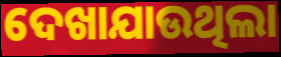
ଦେଖାଯାଉଥିଲା